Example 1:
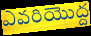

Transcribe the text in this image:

ఎవరియొద్ద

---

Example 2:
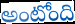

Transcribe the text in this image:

అంటోంది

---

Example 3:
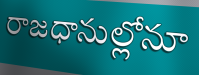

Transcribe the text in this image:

రాజధానుల్లోనూ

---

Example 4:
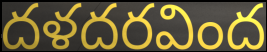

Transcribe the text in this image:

దళదరవింద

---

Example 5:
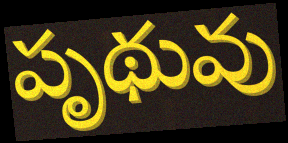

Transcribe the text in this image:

పృథువు